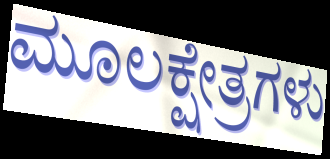
ಮೂಲಕ್ಷೇತ್ರಗಳು